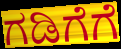
ಗಡಿಗೆಗೆ